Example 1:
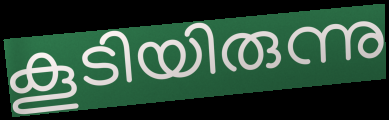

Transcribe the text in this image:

കൂടിയിരുന്നു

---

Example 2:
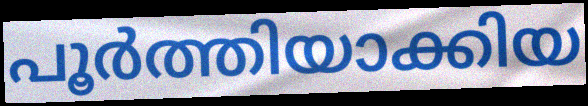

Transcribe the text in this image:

പൂർത്തിയാക്കിയ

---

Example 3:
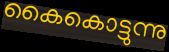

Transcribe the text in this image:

കൈകൊട്ടുന്നു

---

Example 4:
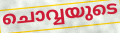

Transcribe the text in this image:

ചൊവ്വയുടെ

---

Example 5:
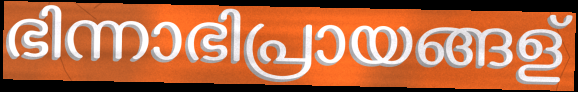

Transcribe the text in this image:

ഭിന്നാഭിപ്രായങ്ങള്